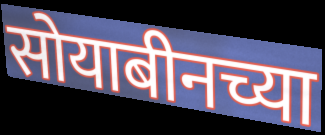
सोयाबीनच्या